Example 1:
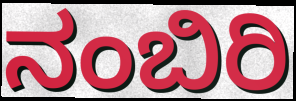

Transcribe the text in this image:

ನಂಬಿರಿ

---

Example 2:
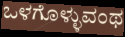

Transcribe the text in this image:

ಒಳಗೊಳ್ಳುವಂಥ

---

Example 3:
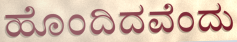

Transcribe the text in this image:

ಹೊಂದಿದವೆಂದು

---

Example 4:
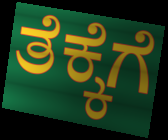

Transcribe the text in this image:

ತೆಕ್ಕೆಗೆ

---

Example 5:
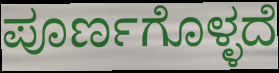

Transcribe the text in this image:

ಪೂರ್ಣಗೊಳ್ಳದೆ